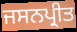
ਜਸਨਪ੍ਰੀਤ